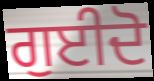
ਗੁਈਦੋ